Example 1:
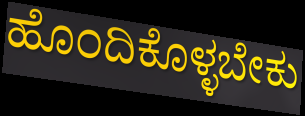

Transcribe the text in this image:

ಹೊಂದಿಕೊಳ್ಳಬೇಕು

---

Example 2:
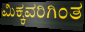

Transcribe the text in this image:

ಮಿಕ್ಕವರಿಗಿಂತ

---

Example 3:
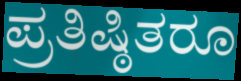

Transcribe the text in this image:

ಪ್ರತಿಷ್ಠಿತರೂ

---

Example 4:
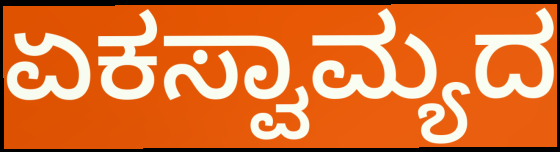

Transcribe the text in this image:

ಏಕಸ್ವಾಮ್ಯದ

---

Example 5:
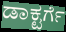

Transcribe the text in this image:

ಡಾಕ್ಟರ್ಗೆ